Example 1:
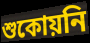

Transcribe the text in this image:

শুকোয়নি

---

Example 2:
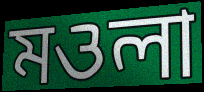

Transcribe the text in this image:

মওলা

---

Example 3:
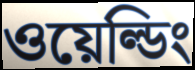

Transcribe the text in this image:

ওয়েল্ডিং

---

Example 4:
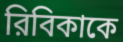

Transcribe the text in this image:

রিবিকাকে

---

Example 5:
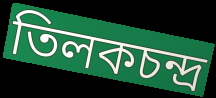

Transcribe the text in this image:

তিলকচন্দ্র